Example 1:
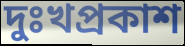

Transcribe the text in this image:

দুঃখপ্রকাশ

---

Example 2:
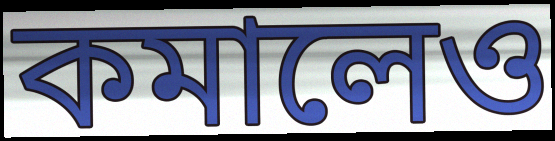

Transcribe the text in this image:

কমালেও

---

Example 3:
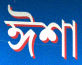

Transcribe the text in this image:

ঈশা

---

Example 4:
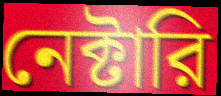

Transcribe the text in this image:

নেক্টারি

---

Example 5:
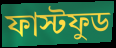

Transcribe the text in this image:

ফাস্টফুড